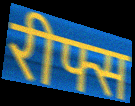
रीफ्स